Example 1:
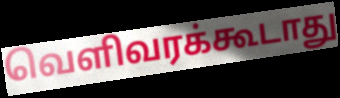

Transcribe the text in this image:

வெளிவரக்கூடாது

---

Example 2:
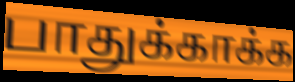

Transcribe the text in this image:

பாதுக்காக்க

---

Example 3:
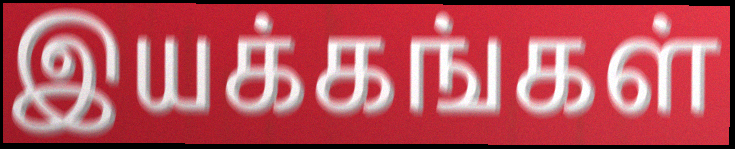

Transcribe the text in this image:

இயக்கங்கள்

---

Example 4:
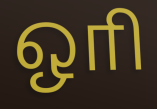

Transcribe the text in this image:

ஒரி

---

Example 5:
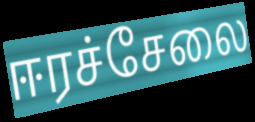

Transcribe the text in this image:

ஈரச்சேலை